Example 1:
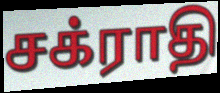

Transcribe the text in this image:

சக்ராதி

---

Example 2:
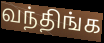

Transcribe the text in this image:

வந்திங்க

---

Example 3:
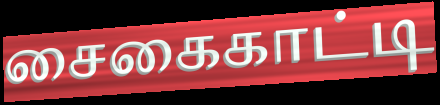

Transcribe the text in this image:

சைகைகாட்டி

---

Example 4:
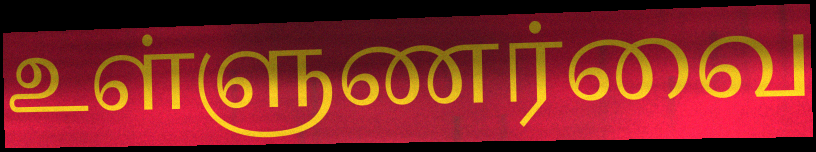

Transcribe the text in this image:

உள்ளுணர்வை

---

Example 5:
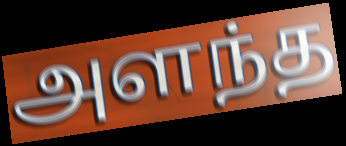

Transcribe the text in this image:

அளந்த